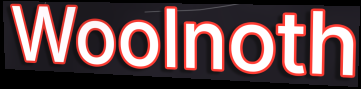
Woolnoth